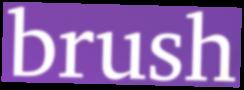
brush